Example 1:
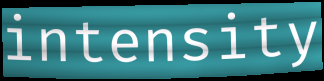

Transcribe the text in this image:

intensity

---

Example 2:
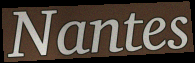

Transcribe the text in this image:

Nantes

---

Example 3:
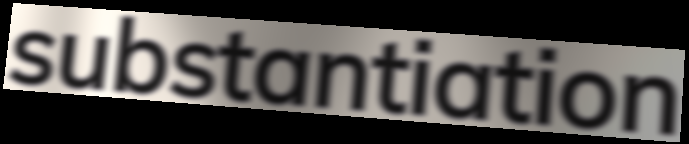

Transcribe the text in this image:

substantiation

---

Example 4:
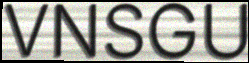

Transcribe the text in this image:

VNSGU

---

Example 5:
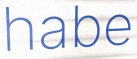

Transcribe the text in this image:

habe